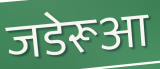
जडेरूआ